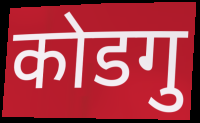
कोडगु